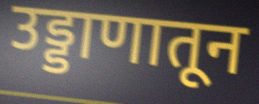
उड्डाणातून